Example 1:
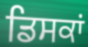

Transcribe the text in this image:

ਡਿਸਕਾਂ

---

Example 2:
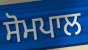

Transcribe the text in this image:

ਸੋਮਪਾਲ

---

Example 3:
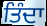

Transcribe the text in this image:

ਤਿੰਦਾ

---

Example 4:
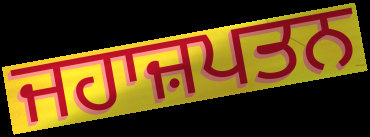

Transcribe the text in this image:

ਜਹਾਜ਼ਪਤਨ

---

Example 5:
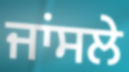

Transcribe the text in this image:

ਜਾਂਸਲੇ